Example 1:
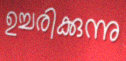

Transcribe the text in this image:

ഉച്ചരിക്കുന്നു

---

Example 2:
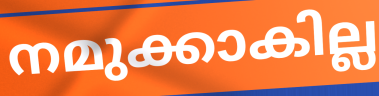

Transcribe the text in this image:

നമുക്കാകില്ല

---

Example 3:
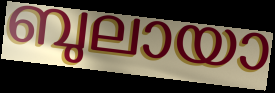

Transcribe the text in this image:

ബുലായാ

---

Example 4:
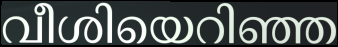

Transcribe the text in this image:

വീശിയെറിഞ്ഞ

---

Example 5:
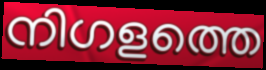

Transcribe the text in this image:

നിഗളത്തെ